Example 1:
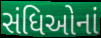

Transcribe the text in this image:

સંધિઓનાં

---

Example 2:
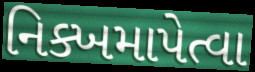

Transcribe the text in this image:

નિક્ખમાપેત્વા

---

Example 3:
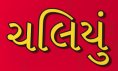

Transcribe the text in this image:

ચલિયું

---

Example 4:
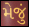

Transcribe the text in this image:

મેજું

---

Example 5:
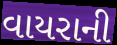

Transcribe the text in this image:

વાયરાની